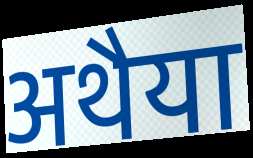
अथैया